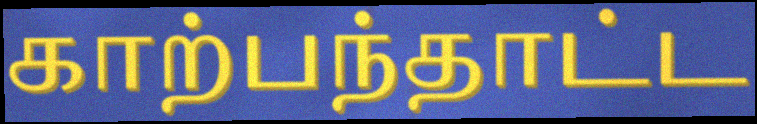
காற்பந்தாட்ட